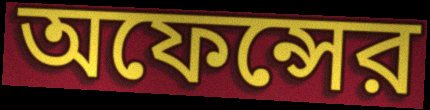
অফেন্সের